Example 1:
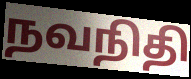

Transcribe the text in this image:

நவநிதி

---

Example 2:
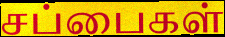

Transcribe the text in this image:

சப்பைகள்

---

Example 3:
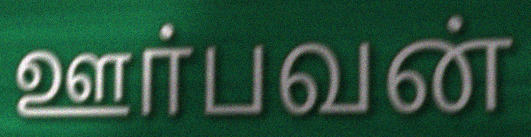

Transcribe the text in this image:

ஊர்பவன்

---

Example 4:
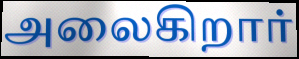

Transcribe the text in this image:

அலைகிறார்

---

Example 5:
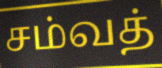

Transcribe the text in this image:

சம்வத்